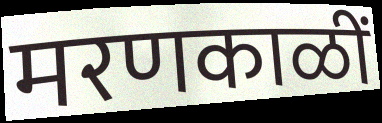
मरणकाळीं